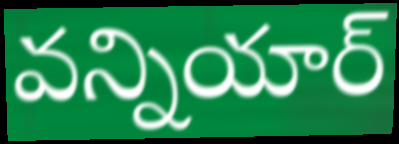
వన్నియార్